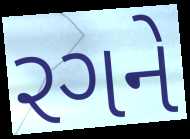
રગને